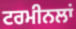
ਟਰਮੀਨਲਾਂ